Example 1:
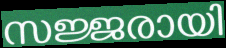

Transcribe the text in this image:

സജ്ജരായി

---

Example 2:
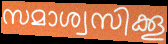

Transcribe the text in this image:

സമാശ്വസിക്കൂ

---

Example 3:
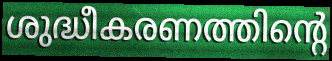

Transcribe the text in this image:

ശുദ്ധീകരണത്തിന്റെ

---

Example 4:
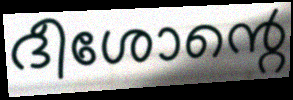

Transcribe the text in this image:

ദീശോന്റെ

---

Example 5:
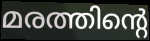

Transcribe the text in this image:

മരത്തിന്റെ